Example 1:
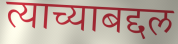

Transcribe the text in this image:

त्याच्याबद्दल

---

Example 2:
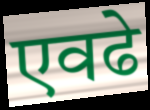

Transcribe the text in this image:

एवढे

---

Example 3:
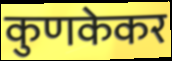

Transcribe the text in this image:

कुणकेकर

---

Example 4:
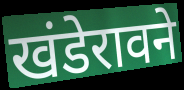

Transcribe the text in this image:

खंडेरावने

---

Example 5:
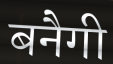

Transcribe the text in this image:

बनैगी